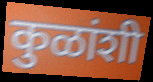
कुळांशी